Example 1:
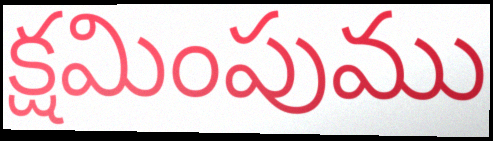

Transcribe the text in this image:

క్షమింపుము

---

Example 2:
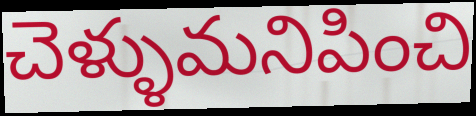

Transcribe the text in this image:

చెళ్ళుమనిపించి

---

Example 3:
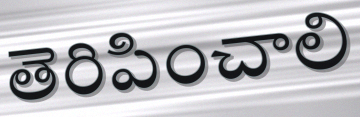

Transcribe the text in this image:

తెరిపించాలి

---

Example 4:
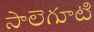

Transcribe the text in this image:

సాలెగూటి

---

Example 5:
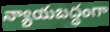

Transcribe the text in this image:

న్యాయబద్ధంగా